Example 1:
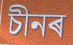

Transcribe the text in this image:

চীনৰ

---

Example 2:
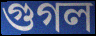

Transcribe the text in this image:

গুগল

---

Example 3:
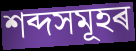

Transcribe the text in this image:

শব্দসমূহৰ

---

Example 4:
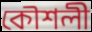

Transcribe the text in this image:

কৌশলী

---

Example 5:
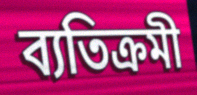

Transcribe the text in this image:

ব্যতিক্ৰমী